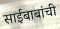
साईबाबांची